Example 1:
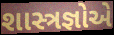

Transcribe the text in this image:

શાસ્ત્રજ્ઞોએ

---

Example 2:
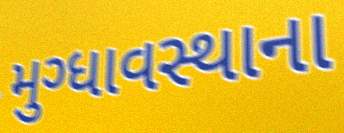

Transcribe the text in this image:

મુગ્ધાવસ્થાના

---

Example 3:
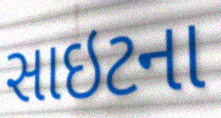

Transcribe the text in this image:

સાઇટના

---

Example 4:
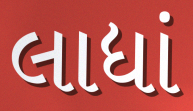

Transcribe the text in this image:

લાદ્યાં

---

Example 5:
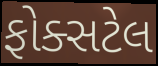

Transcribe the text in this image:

ફોક્સટેલ